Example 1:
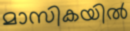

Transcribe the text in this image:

മാസികയിൽ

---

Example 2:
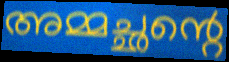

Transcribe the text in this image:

അമ്മച്ഛന്റെ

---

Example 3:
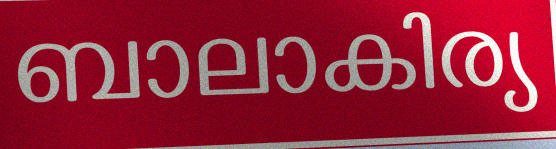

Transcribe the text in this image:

ബാലാകിര്യ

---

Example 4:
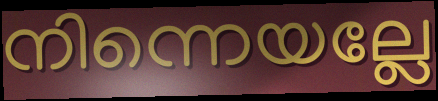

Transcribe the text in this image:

നിന്നെയല്ലേ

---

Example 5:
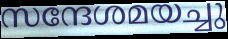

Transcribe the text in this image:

സന്ദേശമയച്ചു